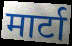
मार्टा